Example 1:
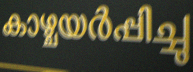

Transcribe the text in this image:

കാഴ്ചയർപ്പിച്ചു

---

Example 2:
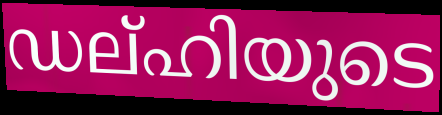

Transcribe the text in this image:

ഡല്ഹിയുടെ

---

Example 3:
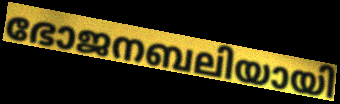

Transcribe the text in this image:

ഭോജനബലിയായി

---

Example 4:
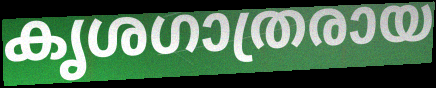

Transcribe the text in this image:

കൃശഗാത്രരായ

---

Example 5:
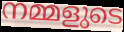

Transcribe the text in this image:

നമ്മളുടെ